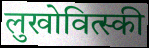
लुखोवित्स्की